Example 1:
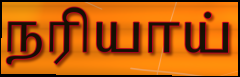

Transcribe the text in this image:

நரியாய்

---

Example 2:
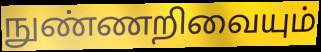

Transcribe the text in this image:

நுண்ணறிவையும்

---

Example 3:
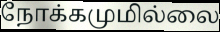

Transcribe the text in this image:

நோக்கமுமில்லை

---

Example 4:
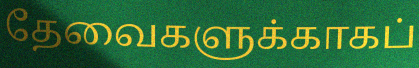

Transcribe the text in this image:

தேவைகளுக்காகப்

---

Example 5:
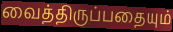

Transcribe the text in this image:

வைத்திருப்பதையும்